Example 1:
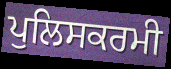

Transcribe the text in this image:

ਪੁਲਿਸਕਰਮੀ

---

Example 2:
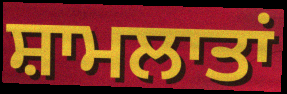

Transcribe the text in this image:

ਸ਼ਾਮਲਾਤਾਂ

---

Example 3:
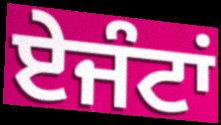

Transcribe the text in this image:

ਏਜੰਟਾਂ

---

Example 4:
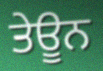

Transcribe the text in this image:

ਤੇਊਨ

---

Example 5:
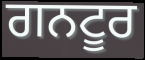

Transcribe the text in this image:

ਗਨਟੂਰ